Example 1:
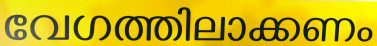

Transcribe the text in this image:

വേഗത്തിലാക്കണം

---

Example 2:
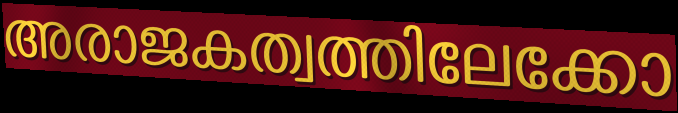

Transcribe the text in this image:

അരാജകത്വത്തിലേക്കോ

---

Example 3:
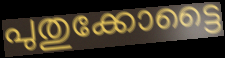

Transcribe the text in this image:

പുതുക്കോട്ടൈ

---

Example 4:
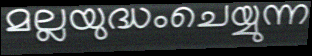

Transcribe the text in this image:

മല്ലയുദ്ധംചെയ്യുന്ന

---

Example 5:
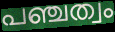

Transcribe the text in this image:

പഞ്ചത്വം